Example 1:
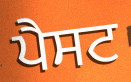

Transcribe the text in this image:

ਪੈਸਟ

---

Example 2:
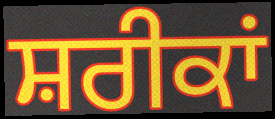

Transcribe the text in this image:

ਸ਼ਰੀਕਾਂ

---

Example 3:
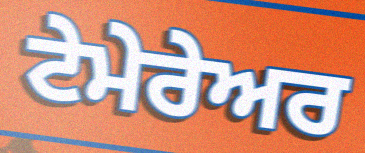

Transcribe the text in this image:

ਟੇਮੇਰੇਅਰ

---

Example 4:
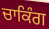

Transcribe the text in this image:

ਚਾਕਿੰਗ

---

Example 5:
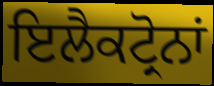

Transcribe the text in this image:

ਇਲੈਕਟ੍ਰੋਨਾਂ